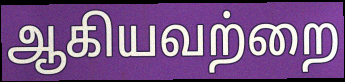
ஆகியவற்றை